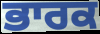
ਭਾਰਕ